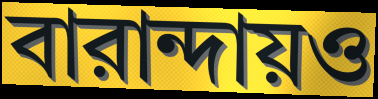
বারান্দায়ও